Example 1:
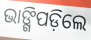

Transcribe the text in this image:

ଭାଙ୍ଗିପଡ଼ିଲେ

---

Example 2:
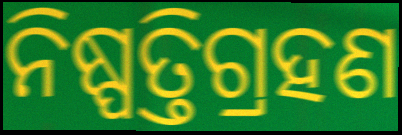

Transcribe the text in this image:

ନିଷ୍ପତ୍ତିଗ୍ରହଣ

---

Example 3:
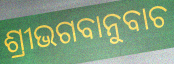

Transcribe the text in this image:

ଶ୍ରୀଭଗବାନୁବାଚ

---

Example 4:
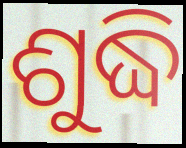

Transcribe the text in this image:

ଶୁଦ୍ଧି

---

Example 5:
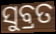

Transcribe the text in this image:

ସୁବ୍ରତ